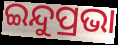
ଇନ୍ଦୁପ୍ରଭା